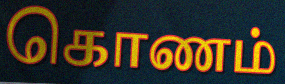
கொணம்